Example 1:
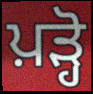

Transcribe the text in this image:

ਪ਼ੜ੍ਹੋ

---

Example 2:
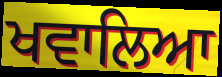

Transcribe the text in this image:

ਖਵਾਲਿਆ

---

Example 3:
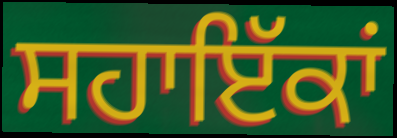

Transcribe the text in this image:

ਸਹਾਇੱਕਾਂ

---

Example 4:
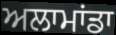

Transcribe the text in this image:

ਅਲਾਮਾਂਡਾ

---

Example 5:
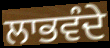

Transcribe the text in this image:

ਲਾਭਵੰਦੇ